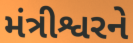
મંત્રીશ્વરને